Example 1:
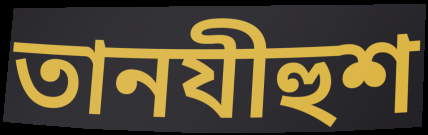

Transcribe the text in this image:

তানযীহুশ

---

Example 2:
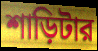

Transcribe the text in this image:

শাড়িটার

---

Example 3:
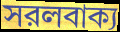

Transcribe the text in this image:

সরলবাক্য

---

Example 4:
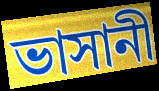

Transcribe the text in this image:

ভাসানী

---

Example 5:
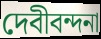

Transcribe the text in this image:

দেবীবন্দনা